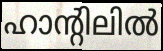
ഹാന്റിലിൽ